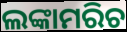
ଲଙ୍କାମରିଚ